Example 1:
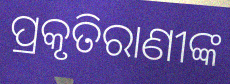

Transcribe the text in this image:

ପ୍ରକୃତିରାଣୀଙ୍କ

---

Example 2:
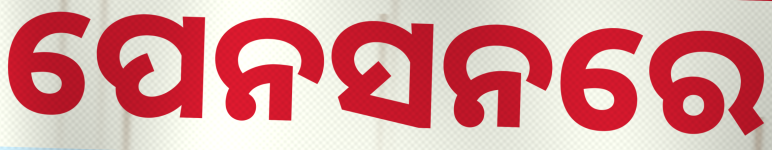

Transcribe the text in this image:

ପେନସନରେ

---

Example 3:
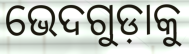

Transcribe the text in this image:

ଭେଦଗୁଡ଼ାକୁ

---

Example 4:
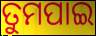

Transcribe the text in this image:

ତୁମପାଇ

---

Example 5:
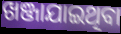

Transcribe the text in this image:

ଖଞ୍ଜାଯାଇଥିବା